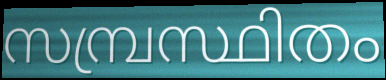
സമ്പ്രസ്ഥിതം